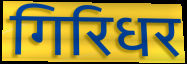
गिरिधर